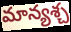
మాన్యశ్చ